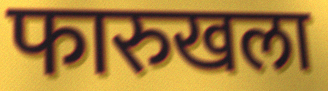
फारुखला